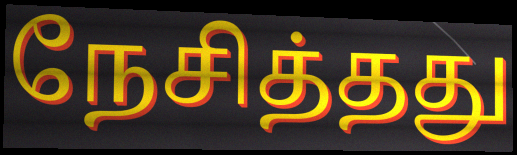
நேசித்தது